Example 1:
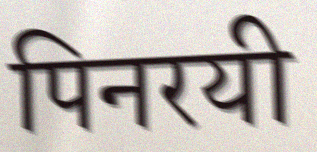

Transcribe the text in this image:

पिनरयी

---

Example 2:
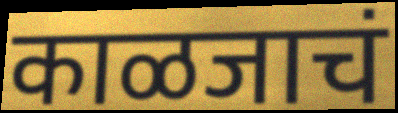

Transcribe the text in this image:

काळजाचं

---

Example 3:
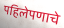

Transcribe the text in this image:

पहिलेपणाचे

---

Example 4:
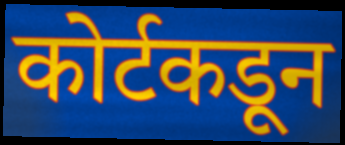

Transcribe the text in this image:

कोर्टकडून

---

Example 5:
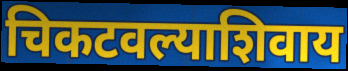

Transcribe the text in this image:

चिकटवल्याशिवाय